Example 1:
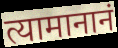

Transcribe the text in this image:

त्यामानानं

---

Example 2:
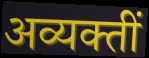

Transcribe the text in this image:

अव्यक्तीं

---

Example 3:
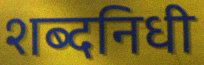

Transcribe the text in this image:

शब्दनिधी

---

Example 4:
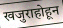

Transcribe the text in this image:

खजुराहोहून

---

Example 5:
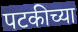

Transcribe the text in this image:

पटकीच्या